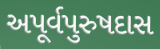
અપૂર્વપુરુષદાસ